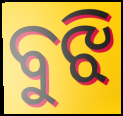
ବୁଝି